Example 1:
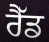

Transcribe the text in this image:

ਰੈੱਡ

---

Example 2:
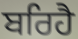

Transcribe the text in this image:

ਬਰਿਹੈ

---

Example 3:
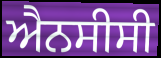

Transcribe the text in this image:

ਐਨਸੀਸੀ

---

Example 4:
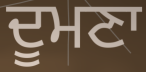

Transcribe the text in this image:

ਦੂਮਣਾ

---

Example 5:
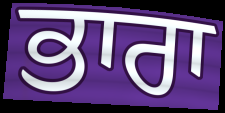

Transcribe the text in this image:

ਭਾਰਾ